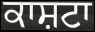
ਕਾਸ਼ਟਾ